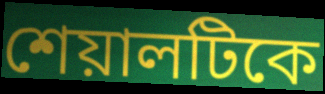
শেয়ালটিকে